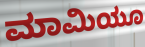
ಮಾಮಿಯೂ